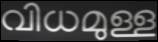
വിധമുള്ള